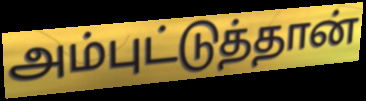
அம்புட்டுத்தான்